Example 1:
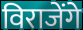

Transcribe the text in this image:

विराजेंगे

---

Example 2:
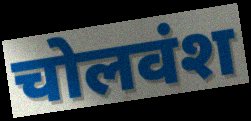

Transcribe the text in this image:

चोलवंश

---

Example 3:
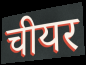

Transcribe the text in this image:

चीयर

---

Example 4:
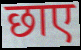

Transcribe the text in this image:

छाए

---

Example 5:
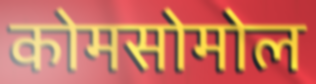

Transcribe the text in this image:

कोमसोमोल